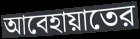
আবেহায়াতের